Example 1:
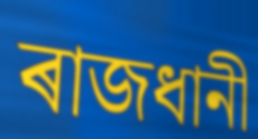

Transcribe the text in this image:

ৰাজধানী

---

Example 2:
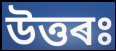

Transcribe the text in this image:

উত্তৰঃ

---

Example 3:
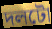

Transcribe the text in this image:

দলটো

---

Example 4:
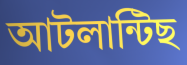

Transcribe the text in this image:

আটলান্টিছ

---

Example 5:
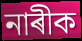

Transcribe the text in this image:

নাৰীক